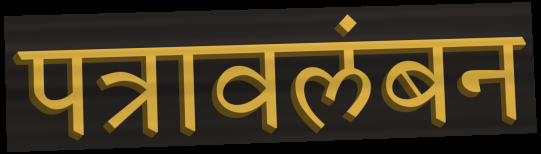
पत्रावलंबन